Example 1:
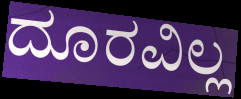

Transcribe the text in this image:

ದೂರವಿಲ್ಲ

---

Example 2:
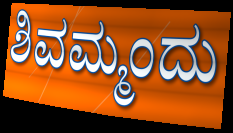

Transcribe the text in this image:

ಶಿವಮ್ಮಂದು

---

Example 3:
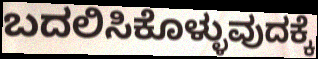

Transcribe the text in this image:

ಬದಲಿಸಿಕೊಳ್ಳುವುದಕ್ಕೆ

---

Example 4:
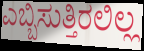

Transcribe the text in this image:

ಎಬ್ಬಿಸುತ್ತಿರಲಿಲ್ಲ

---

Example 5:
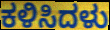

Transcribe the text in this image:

ಕಳಿಸಿದಳು